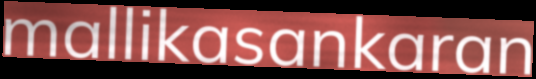
mallikasankaran